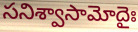
సనిశ్వాసామోదైః